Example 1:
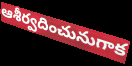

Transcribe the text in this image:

ఆశీర్వదించునుగాక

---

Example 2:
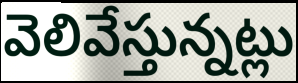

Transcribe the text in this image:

వెలివేస్తున్నట్లు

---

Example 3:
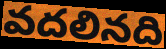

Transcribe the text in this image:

వదలినది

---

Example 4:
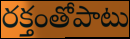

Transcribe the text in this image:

రక్తంతోపాటు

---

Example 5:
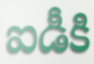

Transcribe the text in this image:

ఐడీకి